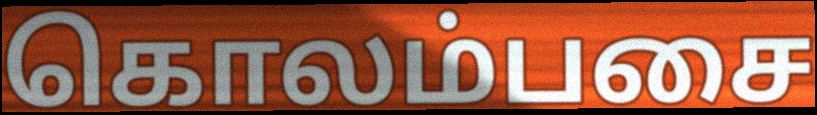
கொலம்பசை